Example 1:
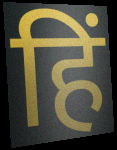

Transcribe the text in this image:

हिं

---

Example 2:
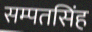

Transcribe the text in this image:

सम्पतसिंह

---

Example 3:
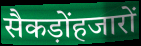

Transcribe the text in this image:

सैकड़ोंहजारों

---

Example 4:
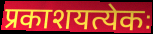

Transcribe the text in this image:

प्रकाशयत्येकः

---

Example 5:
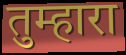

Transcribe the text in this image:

तुम्‍हारा